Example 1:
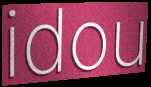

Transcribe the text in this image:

idou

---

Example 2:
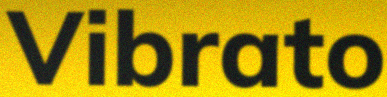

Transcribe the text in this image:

Vibrato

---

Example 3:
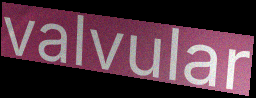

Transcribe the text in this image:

valvular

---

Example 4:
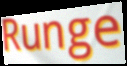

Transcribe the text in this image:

Runge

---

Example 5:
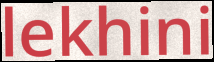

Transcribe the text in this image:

lekhini